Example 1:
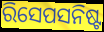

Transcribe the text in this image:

ରିସେପସନିଷ୍ଟ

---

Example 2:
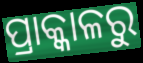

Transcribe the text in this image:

ପ୍ରାକ୍କାଳରୁ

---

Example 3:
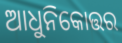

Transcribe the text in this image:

ଆଧୁନିକୋତ୍ତର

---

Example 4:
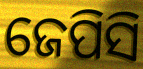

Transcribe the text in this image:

ଜେପିସି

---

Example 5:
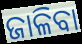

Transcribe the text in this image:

ଜାଳିବା